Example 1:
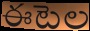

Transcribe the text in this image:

ఈటెల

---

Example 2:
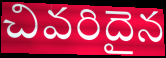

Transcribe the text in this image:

చివరిదైన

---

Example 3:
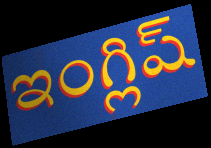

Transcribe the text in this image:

ఇంగ్లిష్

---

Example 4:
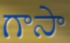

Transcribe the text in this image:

గాసా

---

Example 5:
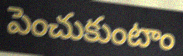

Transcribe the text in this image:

పెంచుకుంటాం